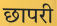
छापरी